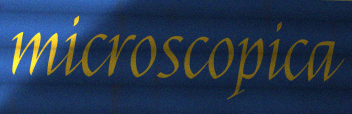
microscopica